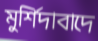
মুর্শিদাবাদে